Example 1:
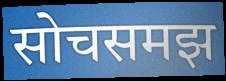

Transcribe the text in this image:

सोचसमझ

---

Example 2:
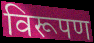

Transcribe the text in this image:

विरूपण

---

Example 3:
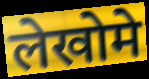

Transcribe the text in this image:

लेखोमे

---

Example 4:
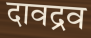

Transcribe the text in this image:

दावद्रव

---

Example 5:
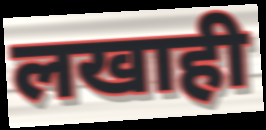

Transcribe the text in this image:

लखाही